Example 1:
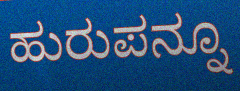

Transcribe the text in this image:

ಹುರುಪನ್ನೂ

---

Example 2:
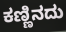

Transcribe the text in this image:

ಕಣ್ಣಿನದು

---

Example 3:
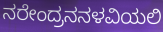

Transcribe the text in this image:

ನರೇಂದ್ರನನಳವಿಯಲಿ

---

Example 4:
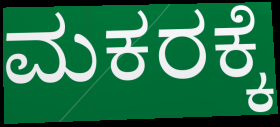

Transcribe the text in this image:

ಮಕರಕ್ಕೆ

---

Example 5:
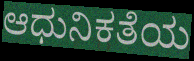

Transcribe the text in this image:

ಆಧುನಿಕತೆಯ